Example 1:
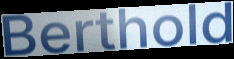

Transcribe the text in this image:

Berthold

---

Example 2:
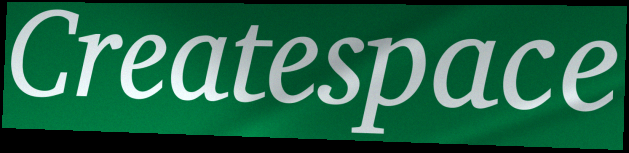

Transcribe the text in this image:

Createspace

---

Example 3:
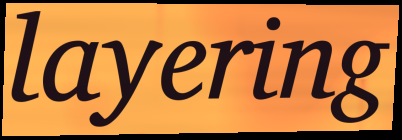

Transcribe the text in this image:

layering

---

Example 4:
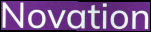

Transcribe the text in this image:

Novation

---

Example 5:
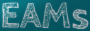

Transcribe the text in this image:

EAMs